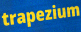
trapezium